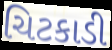
ચિટકાડી